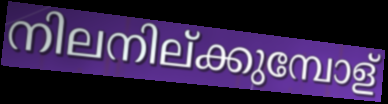
നിലനില്ക്കുമ്പോള്